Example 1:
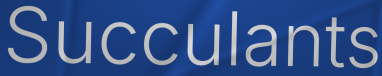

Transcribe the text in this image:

Succulants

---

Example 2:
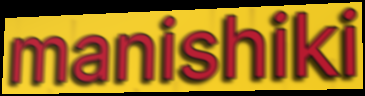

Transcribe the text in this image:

manishiki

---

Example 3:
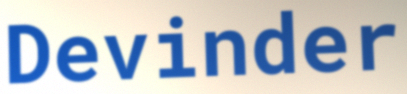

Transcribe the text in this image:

Devinder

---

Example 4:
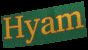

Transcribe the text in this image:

Hyam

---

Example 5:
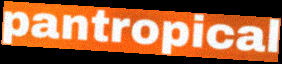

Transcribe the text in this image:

pantropical